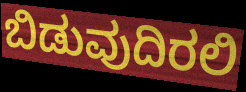
ಬಿಡುವುದಿರಲಿ